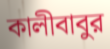
কালীবাবুর